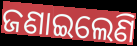
ଜଣାଇଲେଣି